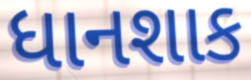
ધાનશાક